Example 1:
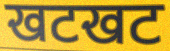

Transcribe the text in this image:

खटखट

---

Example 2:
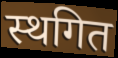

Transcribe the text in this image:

स्थगित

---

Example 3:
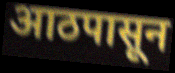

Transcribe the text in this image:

आठपासून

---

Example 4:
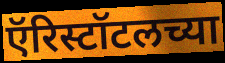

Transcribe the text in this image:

ऍरिस्टॉटलच्या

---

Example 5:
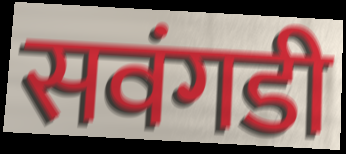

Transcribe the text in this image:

सवंगडी